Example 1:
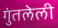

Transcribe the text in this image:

गुंतलेली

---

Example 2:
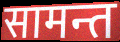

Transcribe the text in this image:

सामन्त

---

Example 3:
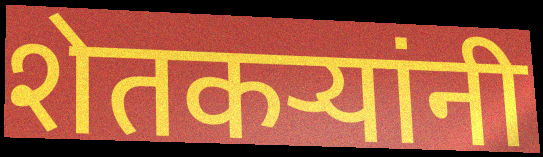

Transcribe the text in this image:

शेतकऱ्यांनी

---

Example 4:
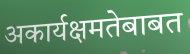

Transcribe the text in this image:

अकार्यक्षमतेबाबत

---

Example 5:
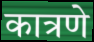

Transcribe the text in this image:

कात्रणे